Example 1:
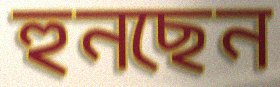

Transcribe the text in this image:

হুনছেন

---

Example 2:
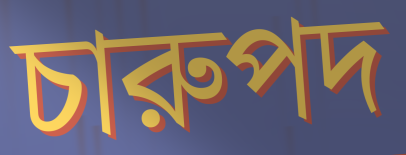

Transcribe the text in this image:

চারুপদ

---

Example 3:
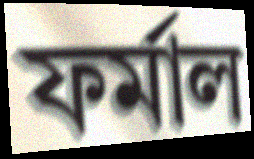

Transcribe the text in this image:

ফর্মাল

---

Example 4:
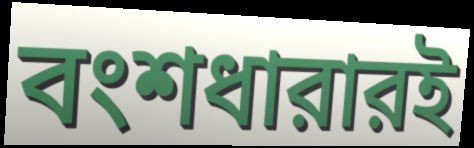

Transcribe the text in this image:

বংশধারারই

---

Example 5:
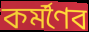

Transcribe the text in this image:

কর্মণৈব